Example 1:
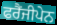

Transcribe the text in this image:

ਫਰੈਂਜੀਪੇਨ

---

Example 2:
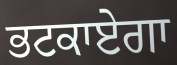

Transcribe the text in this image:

ਭਟਕਾਏਗਾ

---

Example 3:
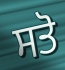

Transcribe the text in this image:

ਸਤੋ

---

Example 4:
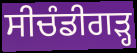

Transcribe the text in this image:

ਸੀਚੰਡੀਗੜ੍ਹ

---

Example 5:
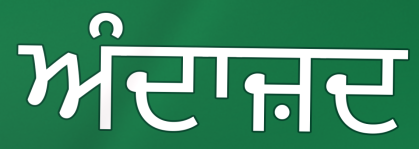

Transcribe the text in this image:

ਅੰਦਾਜ਼ਦ